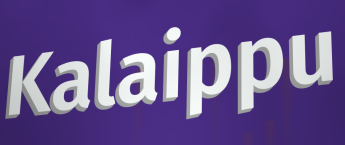
Kalaippu